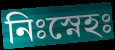
নিঃস্নেহঃ